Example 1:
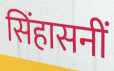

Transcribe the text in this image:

सिंहासनीं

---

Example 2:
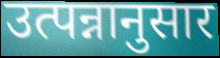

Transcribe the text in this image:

उत्पन्नानुसार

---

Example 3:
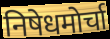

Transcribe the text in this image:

निषेधमोर्चा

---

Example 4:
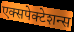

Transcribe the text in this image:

एक्सपेक्टेशन्स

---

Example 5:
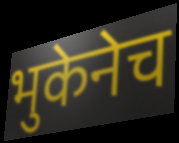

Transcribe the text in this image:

भुकेनेच